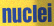
nuclei